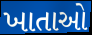
ખાતાઓ